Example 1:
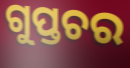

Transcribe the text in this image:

ଗୁପ୍ତଚର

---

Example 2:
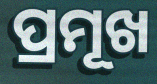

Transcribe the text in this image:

ପ୍ରମୂଖ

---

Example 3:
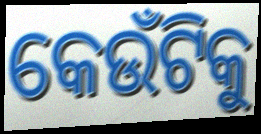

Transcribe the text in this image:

କେଉଁଟିକୁ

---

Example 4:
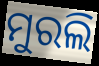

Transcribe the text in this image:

ମୁରଲି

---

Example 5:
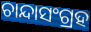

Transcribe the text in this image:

ଚାନ୍ଦାସଂଗ୍ରହ